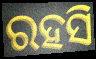
ରହସି